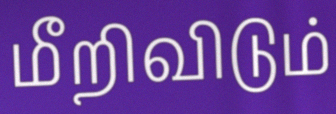
மீறிவிடும்